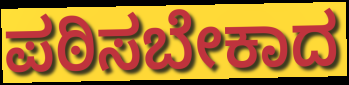
ಪಠಿಸಬೇಕಾದ